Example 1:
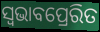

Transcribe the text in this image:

ସ୍ୱଭାବପ୍ରେରିତ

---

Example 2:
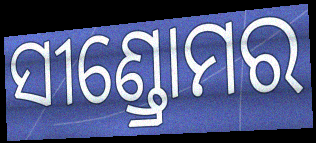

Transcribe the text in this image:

ସୀଣ୍ଡ୍ରୋମର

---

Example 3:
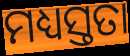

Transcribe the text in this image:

ମଧ୍ୟସ୍ତତା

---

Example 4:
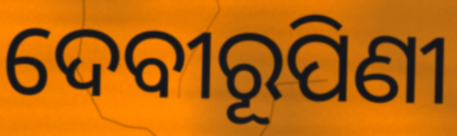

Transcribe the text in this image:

ଦେବୀରୂପିଣୀ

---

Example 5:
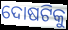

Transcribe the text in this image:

ଦୋଷଟିକୁ